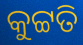
କୁଟ୍ଟତି